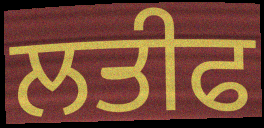
ਲਤੀਫ